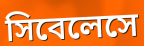
সিবেলেসে